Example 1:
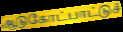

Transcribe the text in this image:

ஆடுகோட்பாட்டுச்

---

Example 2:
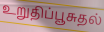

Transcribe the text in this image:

உறுதிப்பூசுதல்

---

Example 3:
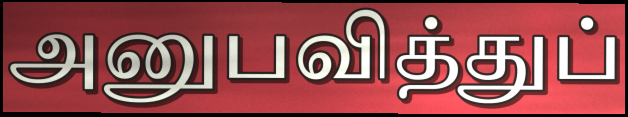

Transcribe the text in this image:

அனுபவித்துப்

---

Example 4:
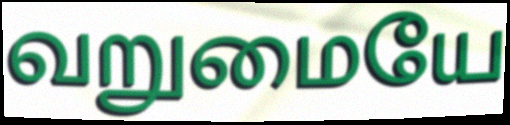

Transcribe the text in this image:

வறுமையே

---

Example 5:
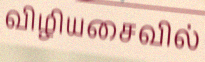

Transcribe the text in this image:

விழியசைவில்